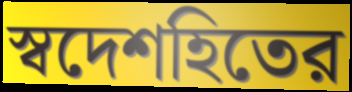
স্বদেশহিতের